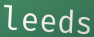
leeds